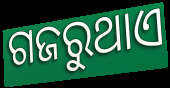
ଗଜରୁଥାଏ